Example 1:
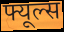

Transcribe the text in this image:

फ्यूल्स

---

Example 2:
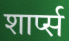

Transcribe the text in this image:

शार्प्स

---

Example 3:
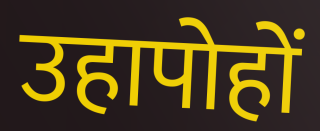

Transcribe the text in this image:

उहापोहों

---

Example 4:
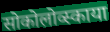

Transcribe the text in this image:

सोकोलोव्स्काया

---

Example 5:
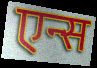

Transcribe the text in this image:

एन्स